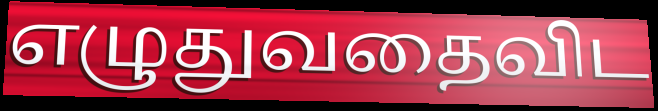
எழுதுவதைவிட